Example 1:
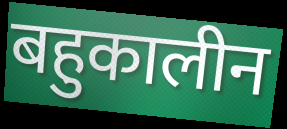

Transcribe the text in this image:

बहुकालीन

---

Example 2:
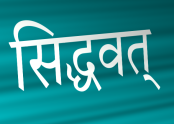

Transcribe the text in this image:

सिद्धवत्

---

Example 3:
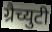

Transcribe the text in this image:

ग्रैच्युटी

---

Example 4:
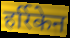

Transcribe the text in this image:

हर्रिकेन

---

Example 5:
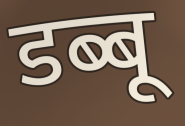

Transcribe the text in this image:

डब्बू